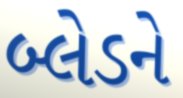
બ્લેડને